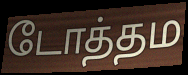
டோத்தம